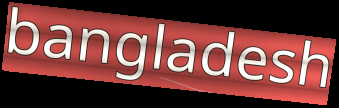
bangladesh